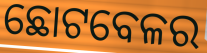
ଛୋଟବେଳର